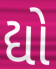
દ્યો